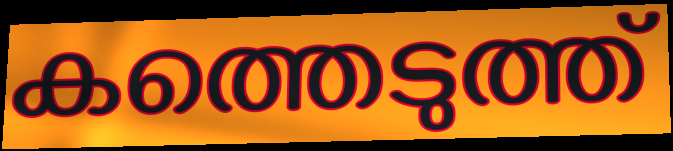
കത്തെടുത്ത്